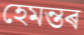
হেমন্তৰ